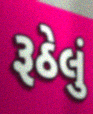
રૂઠેલું